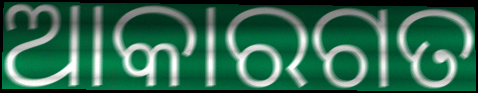
ଆକାରଗତ